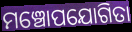
ମଞ୍ଚୋପଯୋଗିତା